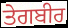
ਤੇਗਬੀਰ